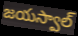
జయస్వాల్